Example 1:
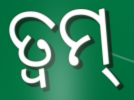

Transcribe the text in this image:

ତ୍ଵମ୍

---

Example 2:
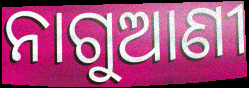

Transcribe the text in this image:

ନାଗୁଆଣୀ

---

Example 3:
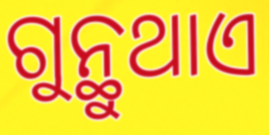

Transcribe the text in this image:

ଗୁନ୍ଥୁଥାଏ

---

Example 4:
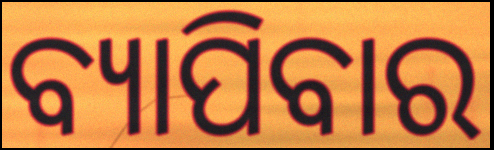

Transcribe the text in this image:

ବ୍ୟାପିବାର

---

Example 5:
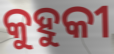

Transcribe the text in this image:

କୁହୁକୀ